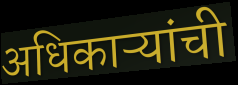
अधिकाऱ्यांची